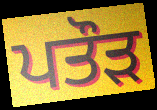
ਪਤੌੜ